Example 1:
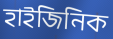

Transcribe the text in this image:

হাইজিনিক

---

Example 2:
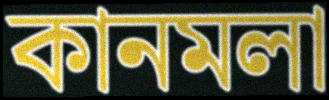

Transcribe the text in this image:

কানমলা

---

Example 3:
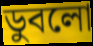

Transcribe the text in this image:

ডুবলো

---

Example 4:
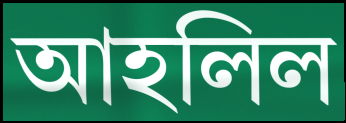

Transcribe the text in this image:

আহলিল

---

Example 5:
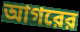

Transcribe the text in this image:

আগরের